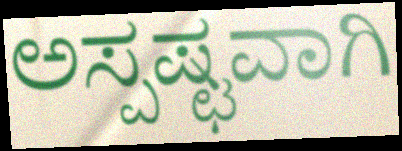
ಅಸ್ಪಷ್ಟವಾಗಿ